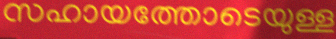
സഹായത്തോടെയുള്ള